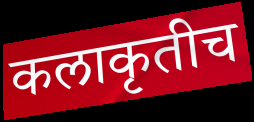
कलाकृतीच